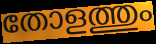
തോളത്തും